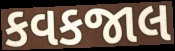
કવકજાલ